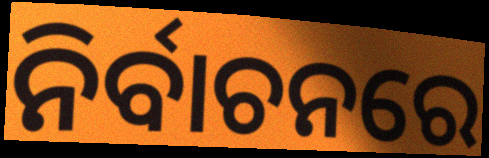
ନିର୍ବାଚନରେ